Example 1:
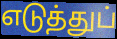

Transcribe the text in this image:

எடுத்துப்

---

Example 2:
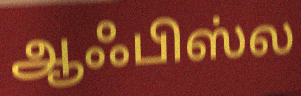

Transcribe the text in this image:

ஆஃபிஸ்ல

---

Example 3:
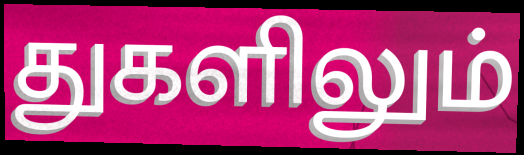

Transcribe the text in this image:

துகளிலும்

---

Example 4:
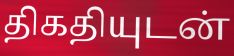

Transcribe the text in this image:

திகதியுடன்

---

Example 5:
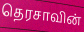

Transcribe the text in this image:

தெரசாவின்